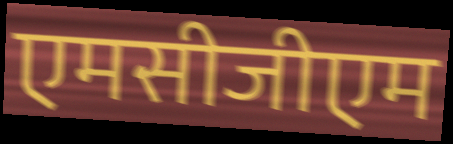
एमसीजीएम